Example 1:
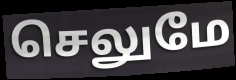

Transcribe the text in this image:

செலுமே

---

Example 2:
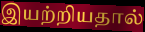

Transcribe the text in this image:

இயற்றியதால்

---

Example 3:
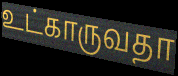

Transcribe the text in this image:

உட்காருவதா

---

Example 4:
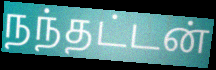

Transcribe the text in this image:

நந்தட்டன்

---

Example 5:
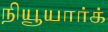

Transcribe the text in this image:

நியூயார்க்